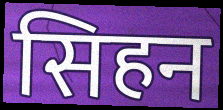
सिहन